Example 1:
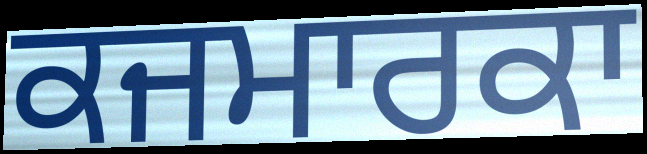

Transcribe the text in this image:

ਕਜਮਾਰਕਾ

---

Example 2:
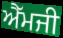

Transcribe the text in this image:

ਐੱਮਜੀ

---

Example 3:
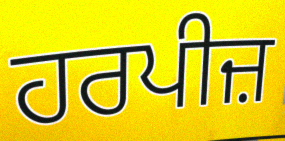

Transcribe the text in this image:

ਹਰਪੀਜ਼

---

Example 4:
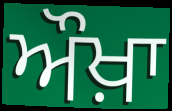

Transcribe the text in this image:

ਔਖ਼ਾ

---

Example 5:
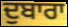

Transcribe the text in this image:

ਦੁਬਾਰਾ